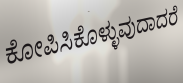
ಕೋಪಿಸಿಕೊಳ್ಳುವುದಾದರೆ